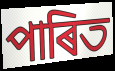
পাৰিত